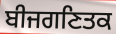
ਬੀਜਗਣਿਤਕ